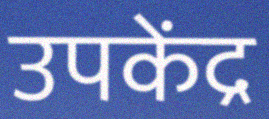
उपकेंद्र